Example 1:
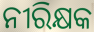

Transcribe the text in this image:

ନୀରିକ୍ଷକ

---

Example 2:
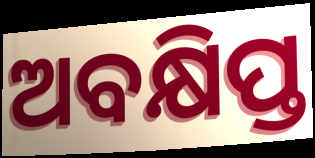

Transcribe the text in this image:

ଅବକ୍ଷିପ୍ତ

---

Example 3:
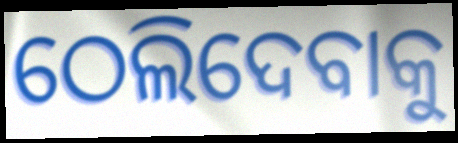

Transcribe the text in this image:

ଠେଲିଦେବାକୁ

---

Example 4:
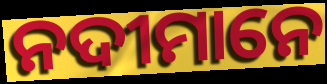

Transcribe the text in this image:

ନଦୀମାନେ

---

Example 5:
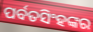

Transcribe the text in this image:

ପର୍ବତସିଂହଙ୍କର